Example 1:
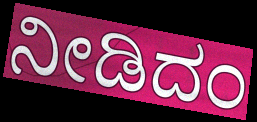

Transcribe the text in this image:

ನೀಡಿದಂ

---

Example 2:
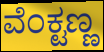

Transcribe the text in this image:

ವೆಂಕ್ಟಣ್ಣ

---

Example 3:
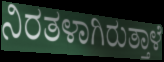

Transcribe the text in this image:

ನಿರತಳಾಗಿರುತ್ತಾಳೆ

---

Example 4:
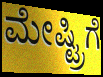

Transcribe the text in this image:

ಮೇಷ್ಟ್ರಿಗೆ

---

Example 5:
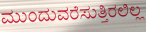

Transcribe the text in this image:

ಮುಂದುವರೆಸುತ್ತಿರಲಿಲ್ಲ